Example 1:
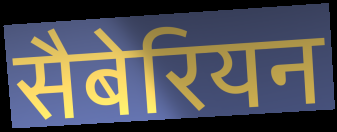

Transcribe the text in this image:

सैबेरियन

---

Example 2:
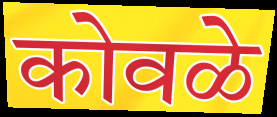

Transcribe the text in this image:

कोवळे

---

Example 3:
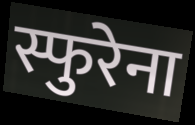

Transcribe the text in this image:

स्फुरेना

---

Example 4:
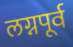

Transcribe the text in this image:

लग्नपूर्व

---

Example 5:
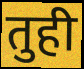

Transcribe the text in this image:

तुही